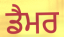
ਡੈਮਰ